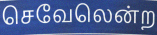
செவேலென்ற